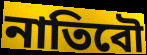
নাতিবৌ